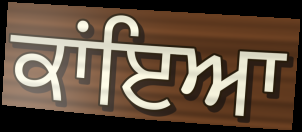
ਕਾਂਇਆ